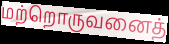
மற்றொருவனைத்